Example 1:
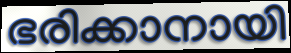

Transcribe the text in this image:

ഭരിക്കാനായി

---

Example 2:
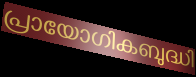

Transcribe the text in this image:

പ്രായോഗികബുദ്ധി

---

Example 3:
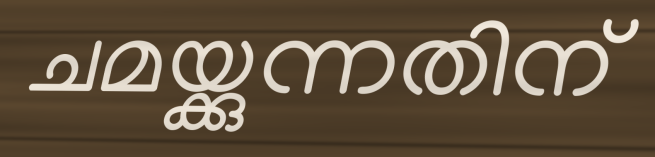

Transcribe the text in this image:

ചമയ്ക്കുന്നതിന്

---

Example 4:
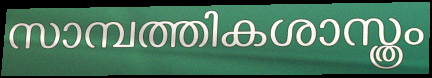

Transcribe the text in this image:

സാമ്പത്തികശാസ്ത്രം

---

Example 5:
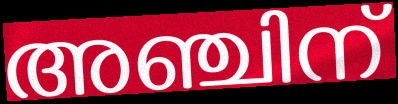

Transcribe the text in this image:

അഞ്ചിന്